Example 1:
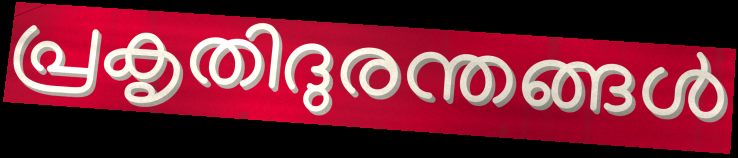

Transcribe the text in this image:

പ്രകൃതിദുരന്തങ്ങൾ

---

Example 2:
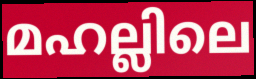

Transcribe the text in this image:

മഹല്ലിലെ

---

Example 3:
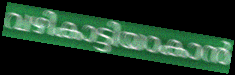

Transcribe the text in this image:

വഴികാട്ടിയാകാൻ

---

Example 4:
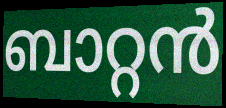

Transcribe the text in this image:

ബാറ്റൻ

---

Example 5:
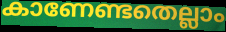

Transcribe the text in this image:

കാണേണ്ടതെല്ലാം